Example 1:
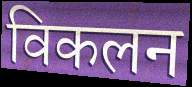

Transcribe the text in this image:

विकलन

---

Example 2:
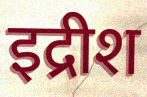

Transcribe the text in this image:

इद्रीश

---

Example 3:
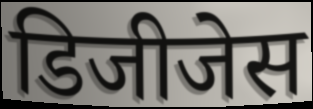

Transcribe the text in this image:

डिजीजेस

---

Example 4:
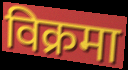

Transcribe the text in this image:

विक्रमा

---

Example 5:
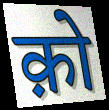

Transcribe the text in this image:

क़ो